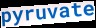
pyruvate